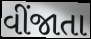
વીંજાતા